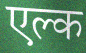
एल्क